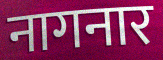
नागनार